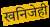
खनिजेही